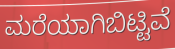
ಮರೆಯಾಗಿಬಿಟ್ಟಿವೆ